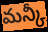
మన్కీ